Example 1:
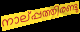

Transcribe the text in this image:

നാല്പ്പത്തിരണ്ടു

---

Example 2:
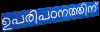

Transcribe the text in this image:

ഉപരിപഠനത്തിന്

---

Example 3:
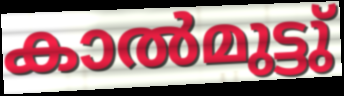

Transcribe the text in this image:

കാൽമുട്ടു്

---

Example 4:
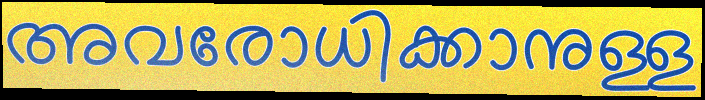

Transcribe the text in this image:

അവരോധിക്കാനുള്ള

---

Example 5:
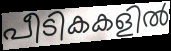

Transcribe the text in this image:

പീടികകളിൽ